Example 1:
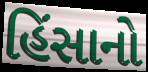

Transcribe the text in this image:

હિંસાનો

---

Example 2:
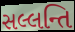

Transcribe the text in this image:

સલ્લન્તિ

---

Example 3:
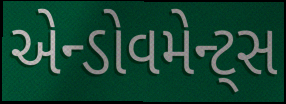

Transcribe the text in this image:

એન્ડોવમેન્ટ્સ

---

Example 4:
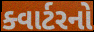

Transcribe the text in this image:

ક્વાર્ટરનો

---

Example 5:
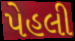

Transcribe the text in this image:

પેહલી